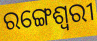
ରଙ୍ଗେଶ୍ୱରୀ